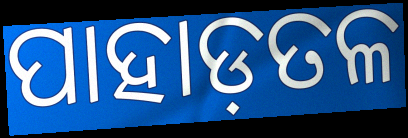
ପାହାଡ଼ତଳ